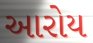
આરોય